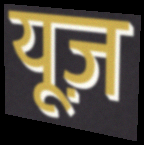
यूज़